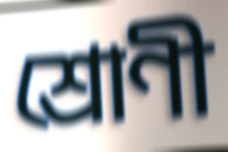
শ্রোণী